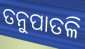
ତନୁପାତଳି